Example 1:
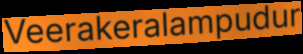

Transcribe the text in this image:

Veerakeralampudur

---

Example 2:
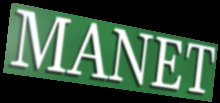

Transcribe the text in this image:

MANET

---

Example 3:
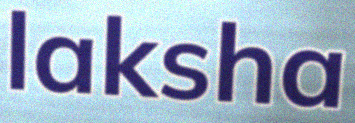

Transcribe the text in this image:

laksha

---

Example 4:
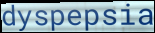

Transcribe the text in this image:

dyspepsia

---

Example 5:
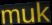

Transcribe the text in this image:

muk